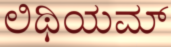
ಲಿಥಿಯಮ್